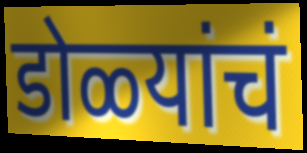
डोळ्यांचं